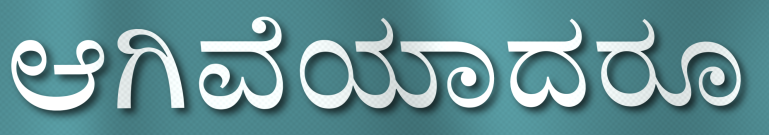
ಆಗಿವೆಯಾದರೂ